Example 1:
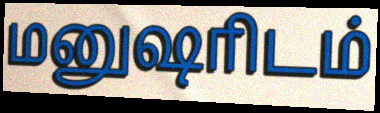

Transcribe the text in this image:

மனுஷரிடம்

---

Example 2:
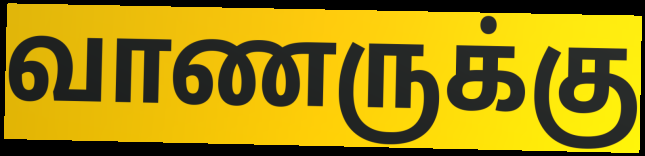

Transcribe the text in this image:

வாணருக்கு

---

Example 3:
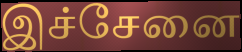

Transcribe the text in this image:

இச்சேனை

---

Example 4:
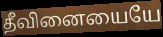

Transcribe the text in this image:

தீவினையையே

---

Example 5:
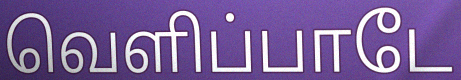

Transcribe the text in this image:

வெளிப்பாடே